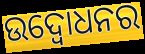
ଉଦ୍ବୋଧନର